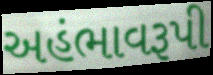
અહંભાવરૂપી